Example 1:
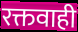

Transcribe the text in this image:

रक्तवाही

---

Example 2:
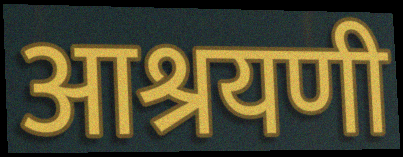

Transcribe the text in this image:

आश्रयणी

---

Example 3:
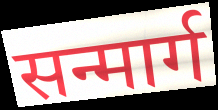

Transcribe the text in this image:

सन्‍मार्ग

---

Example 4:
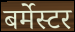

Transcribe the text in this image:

बर्मेस्टर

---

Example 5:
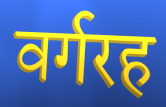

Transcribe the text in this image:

वर्गरह